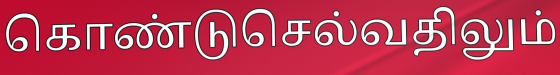
கொண்டுசெல்வதிலும்